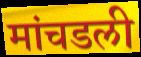
मांचडली